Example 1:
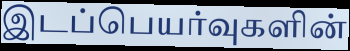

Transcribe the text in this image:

இடப்பெயர்வுகளின்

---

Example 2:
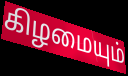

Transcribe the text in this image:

கிழமையும்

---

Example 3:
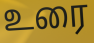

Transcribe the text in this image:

உரை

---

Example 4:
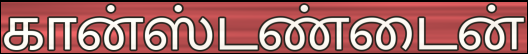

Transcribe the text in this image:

கான்ஸ்டண்டைன்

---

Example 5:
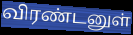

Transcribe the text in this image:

விரண்டனுள்